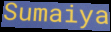
Sumaiya